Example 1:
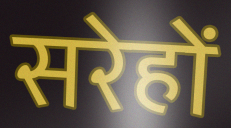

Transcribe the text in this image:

सरेहों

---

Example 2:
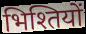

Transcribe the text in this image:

भिश्तियों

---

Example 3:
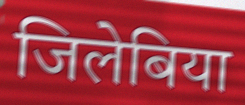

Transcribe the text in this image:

जिलेबिया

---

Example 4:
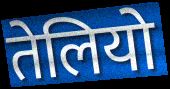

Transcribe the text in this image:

तेलियो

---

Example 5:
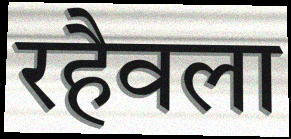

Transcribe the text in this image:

रहैवला